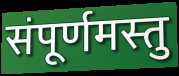
संपूर्णमस्तु